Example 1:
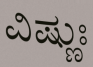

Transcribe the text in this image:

ವಿಷ್ಣುಃ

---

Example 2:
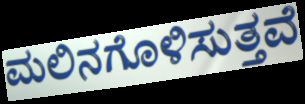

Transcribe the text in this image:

ಮಲಿನಗೊಳಿಸುತ್ತವೆ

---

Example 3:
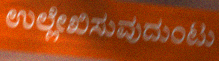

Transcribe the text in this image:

ಉಲ್ಲೇಖಿಸುವುದುಂಟು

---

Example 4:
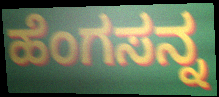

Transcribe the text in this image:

ಹೆಂಗಸನ್ನ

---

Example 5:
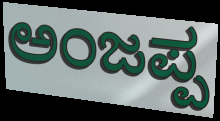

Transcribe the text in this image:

ಅಂಜಪ್ಪ